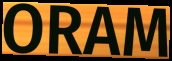
ORAM